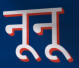
नूनू